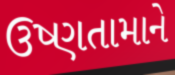
ઉષ્ણતામાને